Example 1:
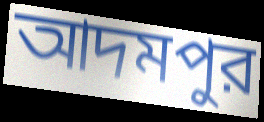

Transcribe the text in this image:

আদমপুর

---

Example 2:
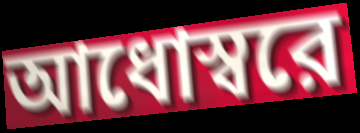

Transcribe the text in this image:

আধোস্বরে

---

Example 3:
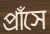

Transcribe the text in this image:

প্রাঁসে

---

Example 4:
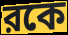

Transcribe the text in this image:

রকে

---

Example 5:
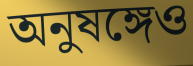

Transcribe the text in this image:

অনুষঙ্গেও